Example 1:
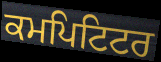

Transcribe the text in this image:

ਕਮਪਿਟਿਟਰ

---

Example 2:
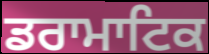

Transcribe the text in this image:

ਡਰਾਮਾਟਿਕ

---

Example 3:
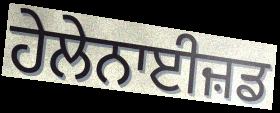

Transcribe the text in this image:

ਹੇਲੇਨਾਈਜ਼ਡ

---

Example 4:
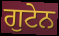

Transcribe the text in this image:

ਗੁਟੇਨ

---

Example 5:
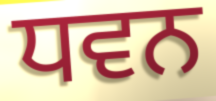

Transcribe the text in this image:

ਧਵਨ